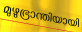
മുഴുഭ്രാന്തിയായി